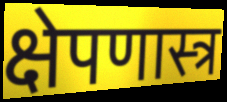
क्षेपणास्त्र